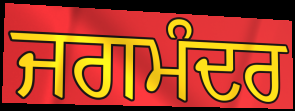
ਜਗਮੰਦਰ